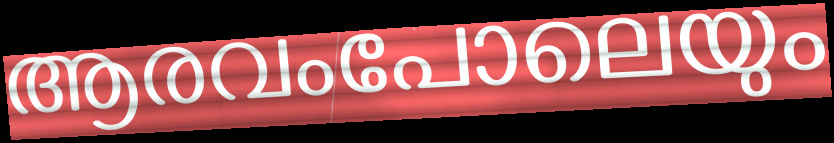
ആരവംപോലെയും